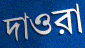
দাওরা